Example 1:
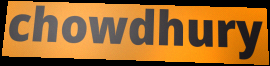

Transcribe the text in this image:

chowdhury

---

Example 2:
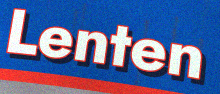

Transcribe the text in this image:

Lenten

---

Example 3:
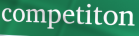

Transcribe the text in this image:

competiton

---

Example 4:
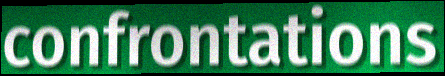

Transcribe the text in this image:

confrontations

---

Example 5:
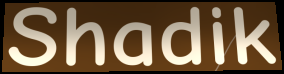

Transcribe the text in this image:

Shadik